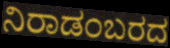
ನಿರಾಡಂಬರದ